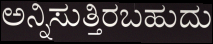
ಅನ್ನಿಸುತ್ತಿರಬಹುದು